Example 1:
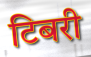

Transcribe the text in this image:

टिबरी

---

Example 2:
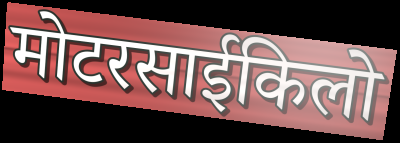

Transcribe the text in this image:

मोटरसाईकिलो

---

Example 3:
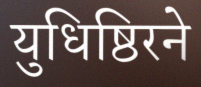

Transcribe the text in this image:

युधिष्ठिरने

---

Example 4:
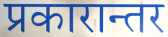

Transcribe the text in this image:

प्रकारान्तर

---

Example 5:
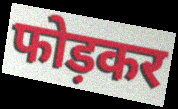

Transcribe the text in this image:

फोड़कर